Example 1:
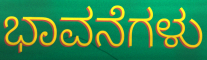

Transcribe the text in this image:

ಭಾವನೆಗಳು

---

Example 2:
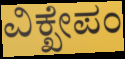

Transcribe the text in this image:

ವಿಕ್ಖೇಪಂ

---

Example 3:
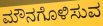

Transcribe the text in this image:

ಮೌನಗೊಳಿಸುವ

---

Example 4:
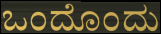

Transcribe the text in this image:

ಒಂದೊಂದು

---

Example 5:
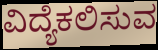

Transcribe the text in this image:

ವಿದ್ಯೆಕಲಿಸುವ